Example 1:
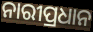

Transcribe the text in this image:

ନାରୀପ୍ରଧାନ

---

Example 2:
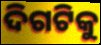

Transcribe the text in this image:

ଦିଗଟିକୁ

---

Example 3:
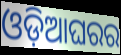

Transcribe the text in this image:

ଓଡ଼ିଆଘରର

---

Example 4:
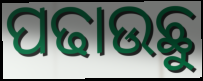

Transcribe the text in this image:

ପଢାଉଛୁ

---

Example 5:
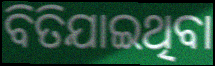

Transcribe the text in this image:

ବିତିଯାଇଥିବା